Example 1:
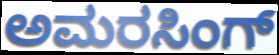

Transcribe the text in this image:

ಅಮರಸಿಂಗ್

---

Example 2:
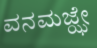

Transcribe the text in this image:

ವನಮಜ್ಝೇ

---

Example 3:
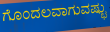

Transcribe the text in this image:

ಗೊಂದಲವಾಗುವಷ್ಟು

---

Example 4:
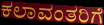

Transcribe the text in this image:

ಕಲಾವಂತರಿಗೆ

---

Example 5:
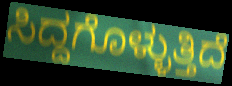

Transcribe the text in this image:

ಸಿದ್ದಗೊಳ್ಳುತ್ತಿದೆ